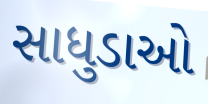
સાધુડાઓ